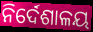
ନିର୍ଦେଶାଳୟ